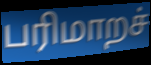
பரிமாறச்